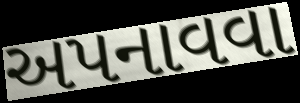
અપનાવવા